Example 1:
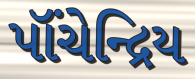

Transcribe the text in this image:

પૉંચેન્દ્રિય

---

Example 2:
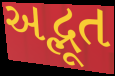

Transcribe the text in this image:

અદ્ભૂત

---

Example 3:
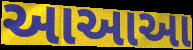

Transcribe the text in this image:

આઆઆ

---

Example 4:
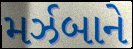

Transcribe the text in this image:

મર્ઝબાને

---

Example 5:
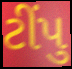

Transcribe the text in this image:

ટીંપુ